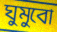
ঘুমুবো